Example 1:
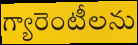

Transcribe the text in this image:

గ్యారెంటీలను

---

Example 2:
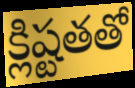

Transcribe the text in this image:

క్లిష్టతతో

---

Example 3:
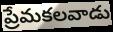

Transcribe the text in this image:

ప్రేమకలవాడు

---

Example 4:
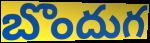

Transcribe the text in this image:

బొందుగ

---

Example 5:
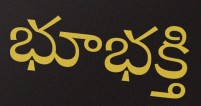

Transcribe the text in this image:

భూభక్తి